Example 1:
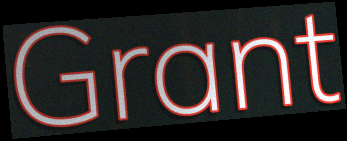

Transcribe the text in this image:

Grant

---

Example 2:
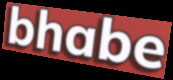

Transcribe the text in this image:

bhabe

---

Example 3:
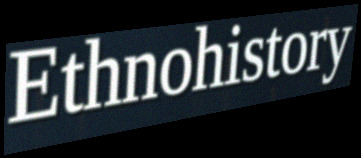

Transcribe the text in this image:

Ethnohistory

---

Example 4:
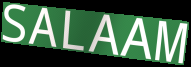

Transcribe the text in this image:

SALAAM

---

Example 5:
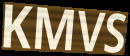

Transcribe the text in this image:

KMVS